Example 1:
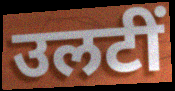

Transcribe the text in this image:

उलटीं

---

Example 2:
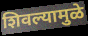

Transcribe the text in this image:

शिवल्यामुळे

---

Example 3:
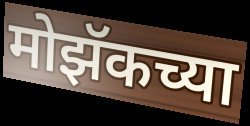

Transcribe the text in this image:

मोझॅकच्या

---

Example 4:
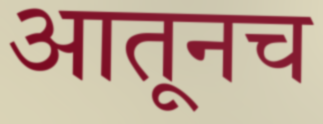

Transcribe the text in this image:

आतूनच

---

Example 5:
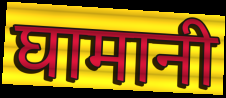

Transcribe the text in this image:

घामानी